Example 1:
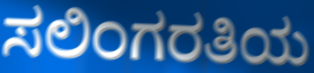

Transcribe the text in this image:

ಸಲಿಂಗರತಿಯ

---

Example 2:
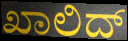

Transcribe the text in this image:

ಖಾಲಿದ್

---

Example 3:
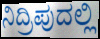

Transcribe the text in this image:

ನಿದ್ರಿಪುದಲ್ಲಿ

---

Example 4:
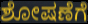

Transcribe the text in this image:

ಶೋಷಣೆಗೆ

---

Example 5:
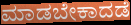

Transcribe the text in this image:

ಮಾಡಬೇಕಾದಡೆ